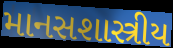
માનસશાસ્ત્રીય